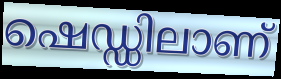
ഷെഡ്ഡിലാണ്